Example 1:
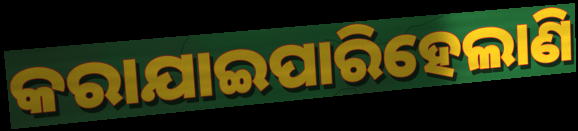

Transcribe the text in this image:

କରାଯାଇପାରିହେଲାଣି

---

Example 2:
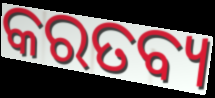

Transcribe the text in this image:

କରତବ୍ୟ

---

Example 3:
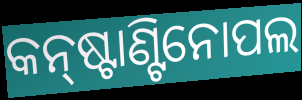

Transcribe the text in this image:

କନ୍‌ଷ୍ଟାଣ୍ଟିନୋପଲ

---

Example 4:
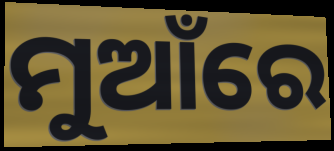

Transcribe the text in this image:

ମୁଆଁରେ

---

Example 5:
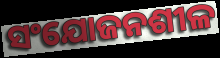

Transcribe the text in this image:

ସଂଯୋଜନଶୀଳ